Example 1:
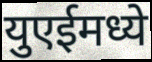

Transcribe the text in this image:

युएईमध्ये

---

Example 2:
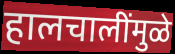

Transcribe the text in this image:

हालचालींमुळे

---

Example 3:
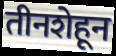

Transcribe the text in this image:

तीनशेहून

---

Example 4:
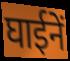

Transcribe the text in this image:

घाईनें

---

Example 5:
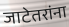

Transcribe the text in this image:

जाटेतरांना